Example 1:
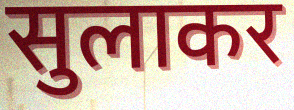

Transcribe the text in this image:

सुलाकर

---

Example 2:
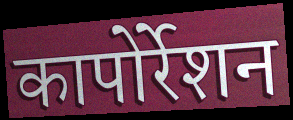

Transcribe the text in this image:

कापोर्रेशन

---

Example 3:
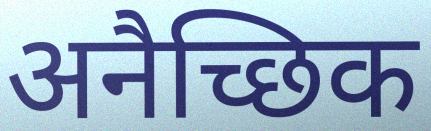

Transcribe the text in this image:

अनैच्छिक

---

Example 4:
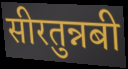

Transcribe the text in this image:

सीरतुन्नबी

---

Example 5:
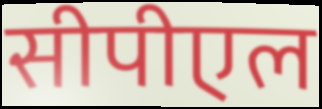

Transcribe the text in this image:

सीपीएल